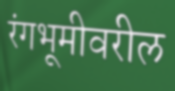
रंगभूमीवरील